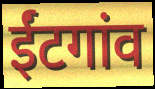
ईंटगांव